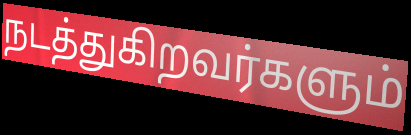
நடத்துகிறவர்களும்